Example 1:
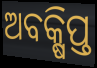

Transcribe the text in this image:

ଅବକ୍ଷିପ୍ତ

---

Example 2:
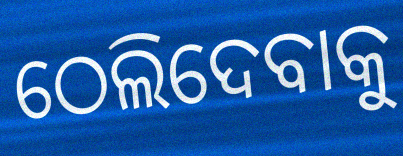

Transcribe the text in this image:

ଠେଲିଦେବାକୁ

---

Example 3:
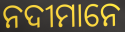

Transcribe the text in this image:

ନଦୀମାନେ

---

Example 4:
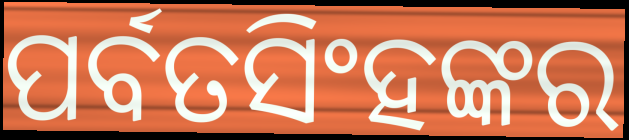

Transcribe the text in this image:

ପର୍ବତସିଂହଙ୍କର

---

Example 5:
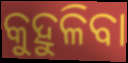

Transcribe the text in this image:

କୁହୁଳିବା